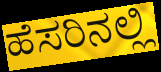
ಹೆಸರಿನಲ್ಲಿ